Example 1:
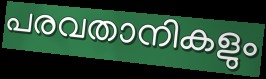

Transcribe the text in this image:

പരവതാനികളും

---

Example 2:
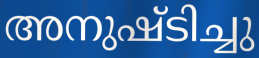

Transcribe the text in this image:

അനുഷ്ടിച്ചു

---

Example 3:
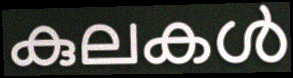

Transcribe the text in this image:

കുലകൾ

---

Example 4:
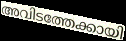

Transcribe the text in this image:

അവിടത്തേക്കായി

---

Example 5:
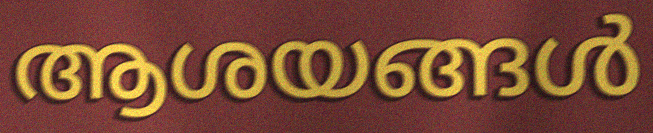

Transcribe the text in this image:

ആശയങ്ങൾ